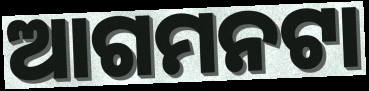
ଆଗମନଟା